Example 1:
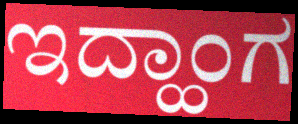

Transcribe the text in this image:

ಇದ್ಹಾಂಗ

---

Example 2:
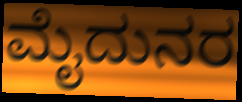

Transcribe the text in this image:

ಮೈದುನರ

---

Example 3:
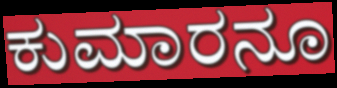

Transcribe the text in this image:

ಕುಮಾರನೂ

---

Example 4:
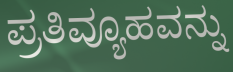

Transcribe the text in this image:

ಪ್ರತಿವ್ಯೂಹವನ್ನು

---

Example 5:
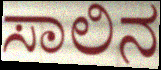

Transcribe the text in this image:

ಸಾಲಿನ